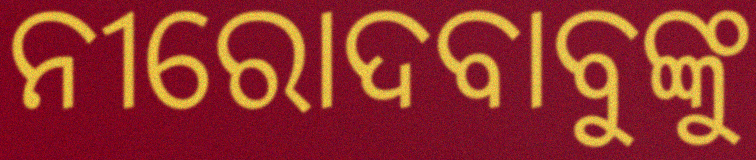
ନୀରୋଦବାବୁଙ୍କୁ